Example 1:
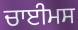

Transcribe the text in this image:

ਚਾਈਮਸ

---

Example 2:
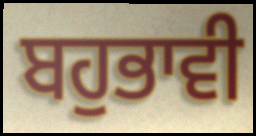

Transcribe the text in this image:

ਬਹੁਭਾਵੀ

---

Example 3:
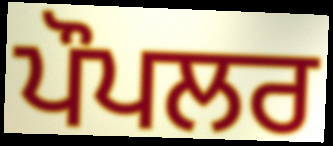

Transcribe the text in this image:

ਪੌਪਲਰ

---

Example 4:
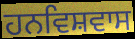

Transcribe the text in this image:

ਹਨਵਿਸ਼ਵਾਸ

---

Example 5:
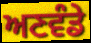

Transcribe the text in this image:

ਅਣਵੰਡੇ